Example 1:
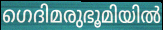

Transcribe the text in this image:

ഗെദിമരുഭൂമിയിൽ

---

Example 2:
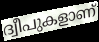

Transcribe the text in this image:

ദ്വീപുകളാണ്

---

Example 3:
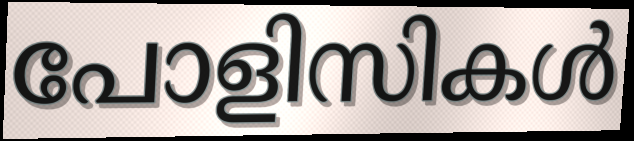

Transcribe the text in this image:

പോളിസികൾ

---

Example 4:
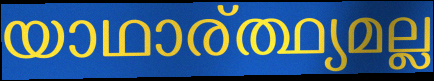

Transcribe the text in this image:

യാഥാര്ത്ഥ്യമല്ല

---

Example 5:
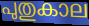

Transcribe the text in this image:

പുതുകാല